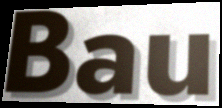
Bau